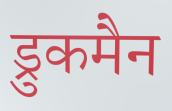
ड्रुकमैन